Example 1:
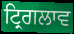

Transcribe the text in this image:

ਟ੍ਰਿਗਲਾਵ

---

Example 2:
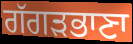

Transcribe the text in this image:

ਗੱਗੜਭਾਣਾ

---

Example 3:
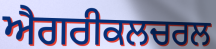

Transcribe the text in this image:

ਐਗਰੀਕਲਚਰਲ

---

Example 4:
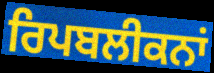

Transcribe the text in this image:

ਰਿਪਬਲੀਕਨਾਂ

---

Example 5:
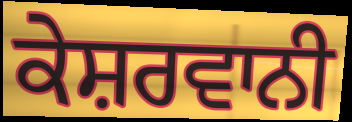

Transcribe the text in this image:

ਕੇਸ਼ਰਵਾਨੀ